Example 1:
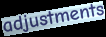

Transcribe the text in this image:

adjustments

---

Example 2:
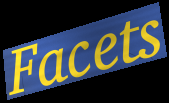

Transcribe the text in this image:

Facets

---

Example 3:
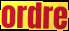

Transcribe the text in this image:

ordre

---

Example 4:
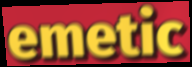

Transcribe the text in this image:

emetic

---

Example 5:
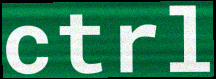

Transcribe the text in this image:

ctrl